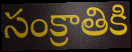
సంక్రాతికి